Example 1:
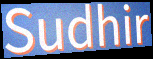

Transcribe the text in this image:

Sudhir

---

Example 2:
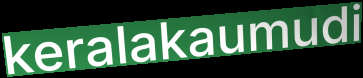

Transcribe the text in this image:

keralakaumudi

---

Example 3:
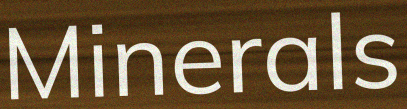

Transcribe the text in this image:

Minerals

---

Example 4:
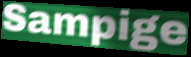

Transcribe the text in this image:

Sampige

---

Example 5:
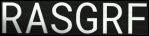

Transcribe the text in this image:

RASGRF